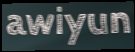
awiyun